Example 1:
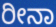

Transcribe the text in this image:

ರೀನಾ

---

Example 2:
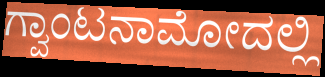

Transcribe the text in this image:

ಗ್ವಾಂಟನಾಮೋದಲ್ಲಿ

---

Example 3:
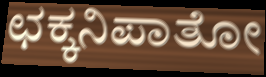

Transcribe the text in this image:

ಛಕ್ಕನಿಪಾತೋ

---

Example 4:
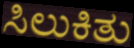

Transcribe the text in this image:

ಸಿಲುಕಿತು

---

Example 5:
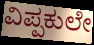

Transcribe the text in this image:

ವಿಪ್ಪಕುಲೇ